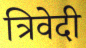
त्रिवेदी